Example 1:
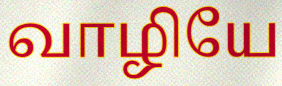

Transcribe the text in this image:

வாழியே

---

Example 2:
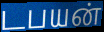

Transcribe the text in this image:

டபயன்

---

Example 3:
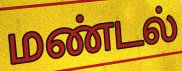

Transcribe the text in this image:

மண்டல்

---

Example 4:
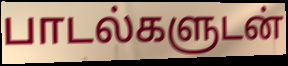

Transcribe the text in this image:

பாடல்களுடன்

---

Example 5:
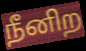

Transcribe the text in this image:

நீனிற